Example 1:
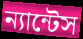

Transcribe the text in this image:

ন্যান্টেস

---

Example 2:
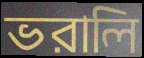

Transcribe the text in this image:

ভরালি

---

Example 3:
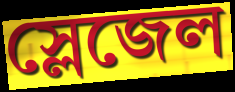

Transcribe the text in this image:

স্লেজেল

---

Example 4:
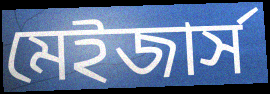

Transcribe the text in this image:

মেইজার্স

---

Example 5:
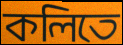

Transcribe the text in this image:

কলিতে